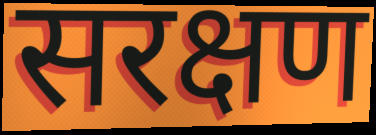
सरक्षण